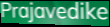
Prajavedike